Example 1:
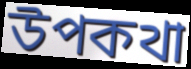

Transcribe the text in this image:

উপকথা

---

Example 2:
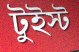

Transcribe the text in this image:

টুইস্ট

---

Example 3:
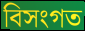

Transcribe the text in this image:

বিসংগত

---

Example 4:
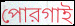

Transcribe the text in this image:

পোরগাই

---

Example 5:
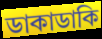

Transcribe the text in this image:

ডাকাডাকি